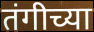
तंगीच्या